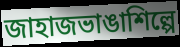
জাহাজভাঙাশিল্পে